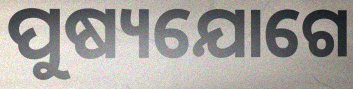
ପୁଷ୍ୟଯୋଗେ